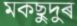
মকছুদুৰ